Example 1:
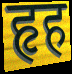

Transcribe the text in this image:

हृह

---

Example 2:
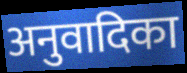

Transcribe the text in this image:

अनुवादिका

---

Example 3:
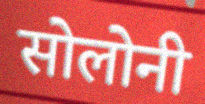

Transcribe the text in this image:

सोलोनी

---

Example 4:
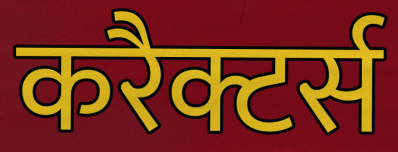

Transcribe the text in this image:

करैक्टर्स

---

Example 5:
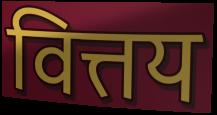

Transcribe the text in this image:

वित्तय